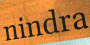
nindra